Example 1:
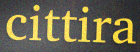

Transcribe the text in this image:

cittira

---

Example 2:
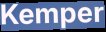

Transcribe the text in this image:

Kemper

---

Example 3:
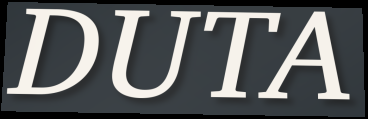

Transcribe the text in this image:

DUTA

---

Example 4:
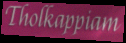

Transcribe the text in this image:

Tholkappiam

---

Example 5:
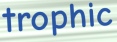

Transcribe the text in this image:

trophic